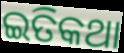
ଇତିକଥା